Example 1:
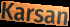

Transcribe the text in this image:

Karsan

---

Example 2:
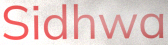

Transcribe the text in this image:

Sidhwa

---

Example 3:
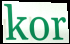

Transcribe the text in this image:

kor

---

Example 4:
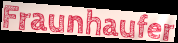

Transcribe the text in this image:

Fraunhaufer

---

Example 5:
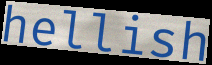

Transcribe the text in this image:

hellish